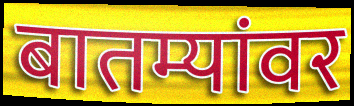
बातम्यांवर